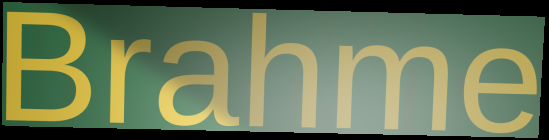
Brahme